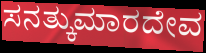
ಸನತ್ಕುಮಾರದೇವ